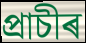
প্ৰাচীৰ